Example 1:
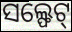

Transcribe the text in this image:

ସଲ୍ଫେଟ୍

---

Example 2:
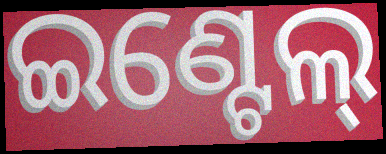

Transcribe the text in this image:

ଇଣ୍ଟେଲ୍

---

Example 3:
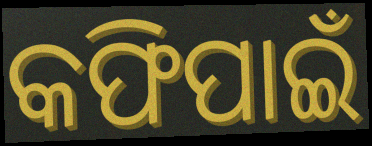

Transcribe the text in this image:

କଫିପାଇଁ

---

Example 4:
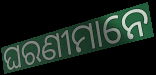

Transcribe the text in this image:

ଘରଣୀମାନେ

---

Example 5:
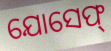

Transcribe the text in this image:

ଯୋସେଫ୍